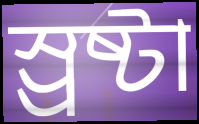
স্র্রষ্টা